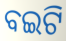
ବଇଟି